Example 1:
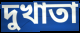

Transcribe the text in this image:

দুখাতা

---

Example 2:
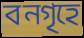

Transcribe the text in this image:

বনগৃহে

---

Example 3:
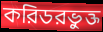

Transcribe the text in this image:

করিডরভুক্ত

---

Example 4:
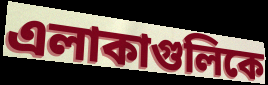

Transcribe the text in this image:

এলাকাগুলিকে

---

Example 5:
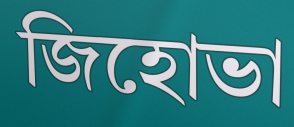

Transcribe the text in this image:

জিহোভা